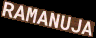
RAMANUJA